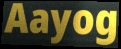
Aayog